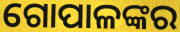
ଗୋପାଳଙ୍କର